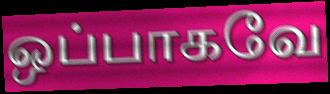
ஒப்பாகவே